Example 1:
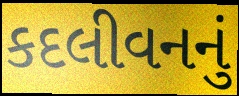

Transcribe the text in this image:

કદલીવનનું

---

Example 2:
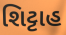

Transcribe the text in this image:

શિટ્ટાહ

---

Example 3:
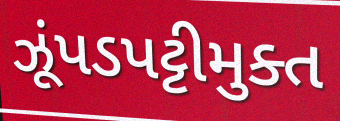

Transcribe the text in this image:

ઝૂંપડપટ્ટીમુક્ત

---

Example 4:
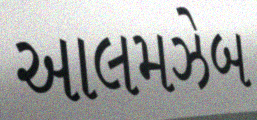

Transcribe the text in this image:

આલમઝેબ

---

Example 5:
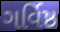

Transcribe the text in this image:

ગર્વિષ્ઠ